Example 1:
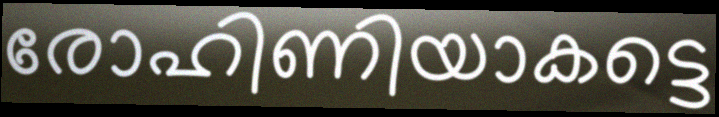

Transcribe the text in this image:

രോഹിണിയാകട്ടെ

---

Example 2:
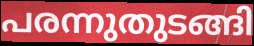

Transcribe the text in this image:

പരന്നുതുടങ്ങി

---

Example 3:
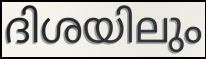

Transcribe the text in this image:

ദിശയിലും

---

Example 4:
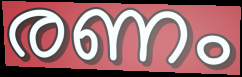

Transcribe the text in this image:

രണം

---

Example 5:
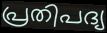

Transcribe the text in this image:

പ്രതിപദ്യ